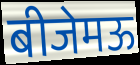
बीजेमऊ